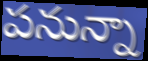
పనున్నా